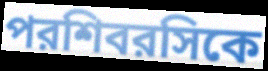
পরশিবরসিকে